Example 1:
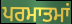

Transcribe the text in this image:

ਪਰਮਾਤਮਾਂ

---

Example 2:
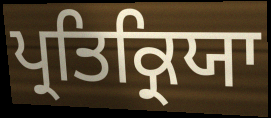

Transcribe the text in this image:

ਪ੍ਰਤਿਕ੍ਰਿਯਾ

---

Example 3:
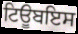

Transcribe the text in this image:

ਟਿਊਬਇਸ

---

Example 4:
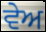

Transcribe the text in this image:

ਵੇਅ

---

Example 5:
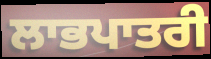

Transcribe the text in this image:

ਲਾਭਪਾਤਰੀ